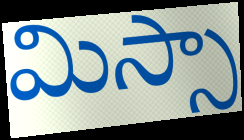
మిస్సా